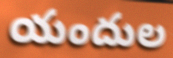
యందుల